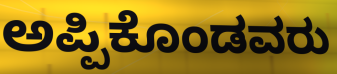
ಅಪ್ಪಿಕೊಂಡವರು